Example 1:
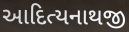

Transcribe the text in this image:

આદિત્યનાથજી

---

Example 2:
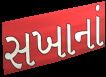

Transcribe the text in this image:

સખાનાં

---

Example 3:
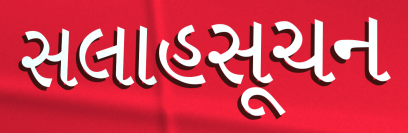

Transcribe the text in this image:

સલાહસૂચન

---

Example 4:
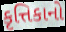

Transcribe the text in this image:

કૃત્તિકાનો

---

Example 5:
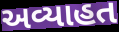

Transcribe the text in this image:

અવ્યાહત